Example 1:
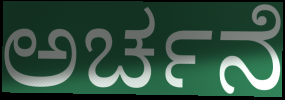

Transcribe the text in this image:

ಅರ್ಚನೆ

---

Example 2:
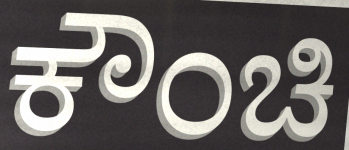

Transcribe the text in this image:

ಕೌಂಚಿ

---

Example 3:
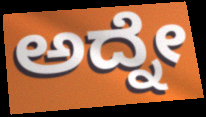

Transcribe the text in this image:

ಅದ್ನೇ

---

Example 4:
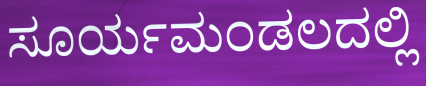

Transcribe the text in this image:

ಸೂರ್ಯಮಂಡಲದಲ್ಲಿ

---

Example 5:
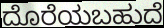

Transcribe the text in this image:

ದೊರೆಯಬಹುದೆ